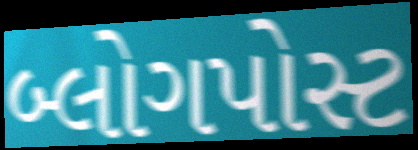
બ્લોગપોસ્ટ